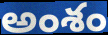
అంశం